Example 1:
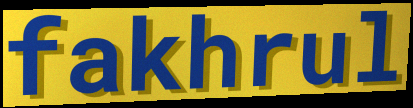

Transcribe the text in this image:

fakhrul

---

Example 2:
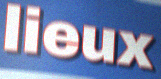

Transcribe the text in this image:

lieux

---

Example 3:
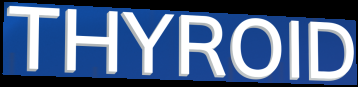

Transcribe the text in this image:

THYROID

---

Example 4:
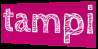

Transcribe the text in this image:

tampi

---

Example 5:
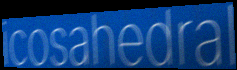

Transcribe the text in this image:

icosahedral